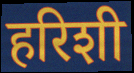
हरिशी